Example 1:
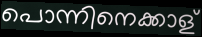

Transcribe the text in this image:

പൊന്നിനെക്കാള്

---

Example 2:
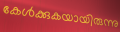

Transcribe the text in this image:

കേൾക്കുകയായിരുന്നു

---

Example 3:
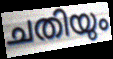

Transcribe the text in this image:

ചതിയും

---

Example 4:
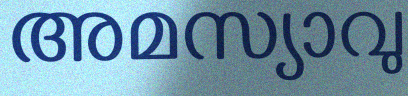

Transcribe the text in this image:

അമസ്യാവു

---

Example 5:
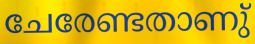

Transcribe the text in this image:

ചേരേണ്ടതാണു്